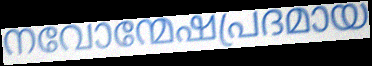
നവോന്മേഷപ്രദമായ